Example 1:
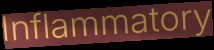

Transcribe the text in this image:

Inflammatory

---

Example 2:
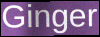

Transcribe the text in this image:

Ginger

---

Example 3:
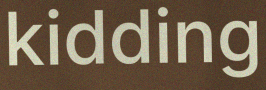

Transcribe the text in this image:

kidding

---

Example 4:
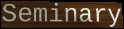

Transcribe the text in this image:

Seminary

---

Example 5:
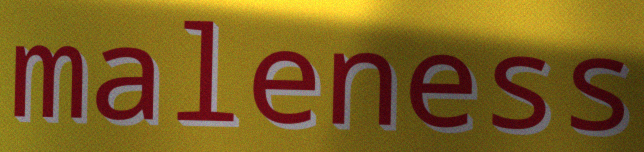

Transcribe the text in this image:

maleness